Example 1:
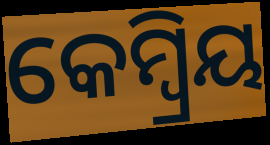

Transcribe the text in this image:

କେମ୍ବ୍ରିୟ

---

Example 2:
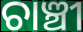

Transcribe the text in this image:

ଚାଞ୍ଚୀ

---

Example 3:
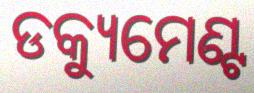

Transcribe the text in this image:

ଡକ୍ୟୁମେଣ୍ଟ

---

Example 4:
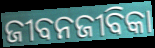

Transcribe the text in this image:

ଜୀବନଜୀବିକା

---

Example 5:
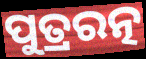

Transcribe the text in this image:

ପୁତ୍ରରତ୍ନ